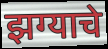
झग्याचे